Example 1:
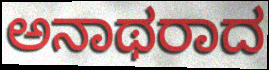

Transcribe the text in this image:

ಅನಾಥರಾದ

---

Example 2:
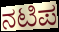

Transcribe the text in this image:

ನಟಿಪ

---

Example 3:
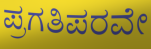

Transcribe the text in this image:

ಪ್ರಗತಿಪರವೇ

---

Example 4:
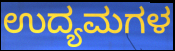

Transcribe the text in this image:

ಉದ್ಯಮಗಳ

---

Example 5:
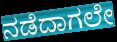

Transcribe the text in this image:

ನಡೆದಾಗಲೇ